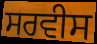
ਸਰਵੀਸ